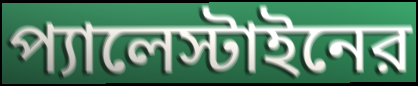
প্যালেস্টাইনের